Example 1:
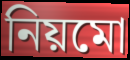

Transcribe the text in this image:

নিয়মো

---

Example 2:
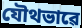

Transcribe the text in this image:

যৌথভাৱে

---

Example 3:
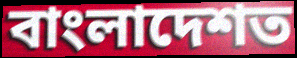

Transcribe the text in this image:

বাংলাদেশত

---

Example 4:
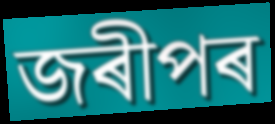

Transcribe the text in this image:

জৰীপৰ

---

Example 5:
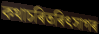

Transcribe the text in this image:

কথাচৰিতৰিৎসাগৰ